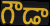
గౌడా